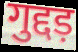
गुद्दड़